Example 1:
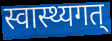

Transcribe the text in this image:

स्वास्थ्यगत्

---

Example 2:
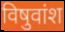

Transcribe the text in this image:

विषुवांश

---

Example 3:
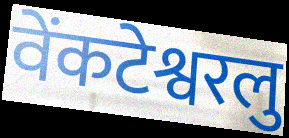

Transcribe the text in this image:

वेंकटेश्वरलु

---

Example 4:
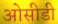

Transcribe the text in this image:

ओसीडी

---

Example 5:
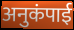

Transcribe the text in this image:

अनुकंपाई